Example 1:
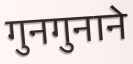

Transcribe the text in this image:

गुनगुनाने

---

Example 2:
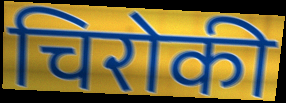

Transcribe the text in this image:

चिरोकी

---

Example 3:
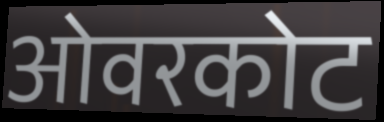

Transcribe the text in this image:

ओवरकोट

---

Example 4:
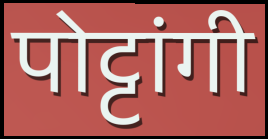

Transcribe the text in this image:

पोट्टांगी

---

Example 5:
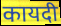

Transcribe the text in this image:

कायदी